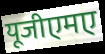
यूजीएमए